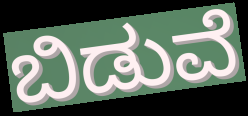
ಬಿಡುವೆ